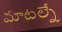
మాటల్నే